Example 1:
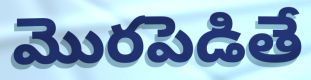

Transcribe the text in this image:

మొరపెడితే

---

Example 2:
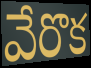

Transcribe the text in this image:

వేరొక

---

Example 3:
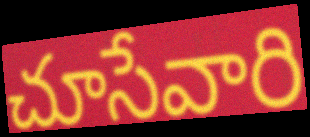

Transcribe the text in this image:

చూసేవారి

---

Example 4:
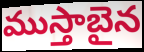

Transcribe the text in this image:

ముస్తాబైన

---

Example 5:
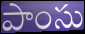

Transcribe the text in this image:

పాంసు